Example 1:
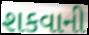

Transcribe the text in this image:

શકવાની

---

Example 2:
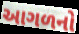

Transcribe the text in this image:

આગળનો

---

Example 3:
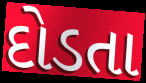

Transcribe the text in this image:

દોડતા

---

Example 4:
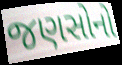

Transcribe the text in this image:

જણસોનો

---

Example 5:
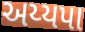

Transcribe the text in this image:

અય્યપા